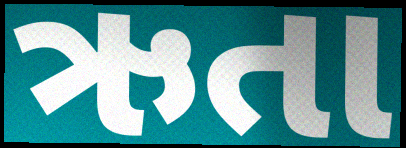
ઋતા